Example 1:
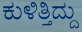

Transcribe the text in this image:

ಕುಳಿತ್ತಿದ್ದು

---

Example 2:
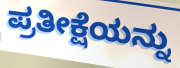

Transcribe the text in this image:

ಪ್ರತೀಕ್ಷೆಯನ್ನು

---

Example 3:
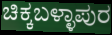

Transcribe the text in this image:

ಚಿಕ್ಕಬಳ್ಳಾಪುರ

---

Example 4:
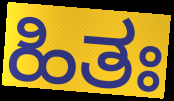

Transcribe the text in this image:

ಹಿತಃ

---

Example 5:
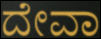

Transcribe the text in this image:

ದೇವಾ